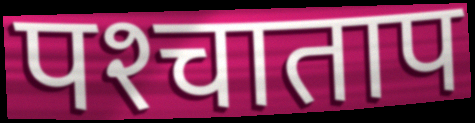
पश्चाताप